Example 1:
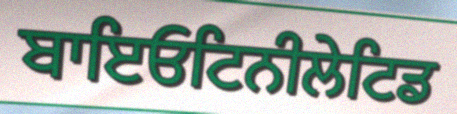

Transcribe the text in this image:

ਬਾਇਓਟਿਨੀਲੇਟਿਡ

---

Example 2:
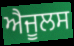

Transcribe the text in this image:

ਐਜੂਲਸ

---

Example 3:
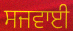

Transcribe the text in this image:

ਸਜਵਾਈ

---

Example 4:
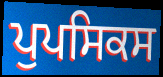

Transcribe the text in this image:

ਪੁਪਸਿਕਸ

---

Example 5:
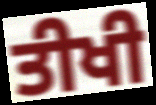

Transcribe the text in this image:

ਤੀਖੀ